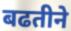
बढतीने